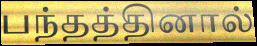
பந்தத்தினால்